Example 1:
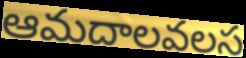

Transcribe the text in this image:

ఆమదాలవలస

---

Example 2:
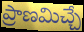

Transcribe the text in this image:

ప్రాణమిచ్చే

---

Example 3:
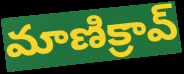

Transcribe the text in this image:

మాణిక్రావ్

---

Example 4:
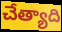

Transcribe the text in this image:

చేత్యాది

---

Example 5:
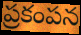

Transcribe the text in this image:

ప్రకంపన